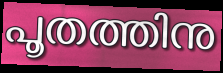
പൂതത്തിനു